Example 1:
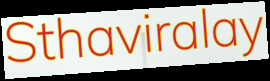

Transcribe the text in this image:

Sthaviralay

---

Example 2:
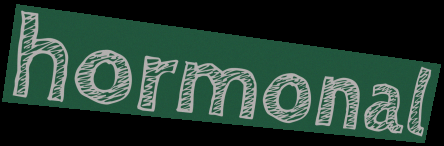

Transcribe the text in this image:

hormonal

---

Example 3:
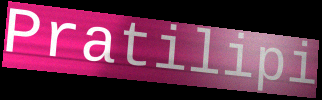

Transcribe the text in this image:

Pratilipi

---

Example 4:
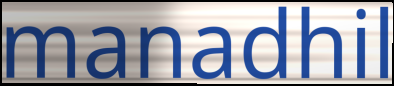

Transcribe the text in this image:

manadhil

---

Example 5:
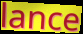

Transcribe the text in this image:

lance